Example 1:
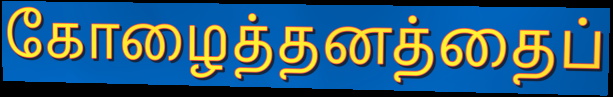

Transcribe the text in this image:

கோழைத்தனத்தைப்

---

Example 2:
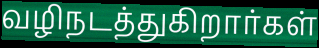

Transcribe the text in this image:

வழிநடத்துகிறார்கள்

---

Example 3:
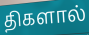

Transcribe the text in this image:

திகளால்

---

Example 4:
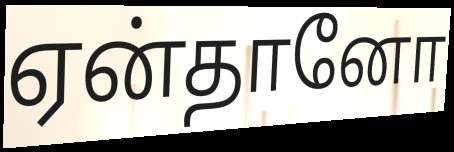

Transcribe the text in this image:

ஏன்தானோ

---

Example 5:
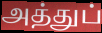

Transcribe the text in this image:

அத்துப்